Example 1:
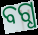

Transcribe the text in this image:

ବଗ୍ଧ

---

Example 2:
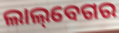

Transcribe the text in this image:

ଲାଲ୍‌ବେଗର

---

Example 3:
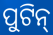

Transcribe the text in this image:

ପୁଟିନ୍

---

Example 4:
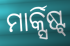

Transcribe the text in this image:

ମାର୍କ୍ସିଷ୍ଟ୍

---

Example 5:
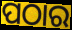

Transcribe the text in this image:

ପଠାର